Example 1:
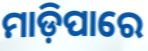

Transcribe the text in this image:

ମାଡ଼ିପାରେ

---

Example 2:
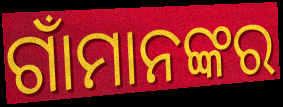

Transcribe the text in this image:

ଗାଁମାନଙ୍କର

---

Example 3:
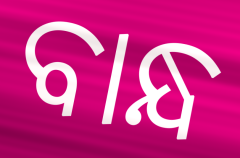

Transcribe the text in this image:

ବାନ୍ଧ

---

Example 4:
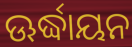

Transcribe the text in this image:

ଊର୍ଦ୍ଧାୟନ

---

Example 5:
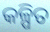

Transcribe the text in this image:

କଳ୍ପିତ